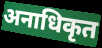
अनाधिकृत